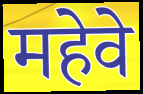
महेवे